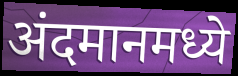
अंदमानमध्ये